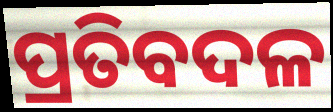
ପ୍ରତିବଦଳ